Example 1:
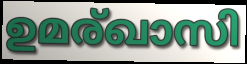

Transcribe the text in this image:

ഉമര്ഖാസി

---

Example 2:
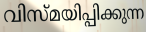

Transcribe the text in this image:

വിസ്മയിപ്പിക്കുന്ന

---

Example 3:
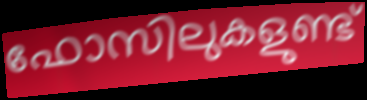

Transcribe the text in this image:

ഫോസിലുകളുണ്ട്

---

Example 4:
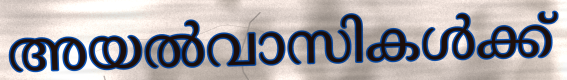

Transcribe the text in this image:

അയൽവാസികൾക്ക്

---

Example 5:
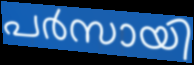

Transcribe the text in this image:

പർസായി